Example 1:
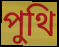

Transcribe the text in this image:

পুথি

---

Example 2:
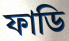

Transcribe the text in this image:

ফাডি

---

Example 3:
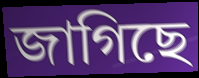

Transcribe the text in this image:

জাগিছে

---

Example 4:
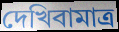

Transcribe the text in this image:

দেখিবামাত্র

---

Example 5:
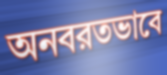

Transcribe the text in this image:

অনবরতভাবে